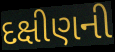
દક્ષીણની